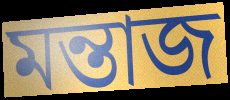
মন্তাজ